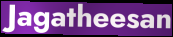
Jagatheesan